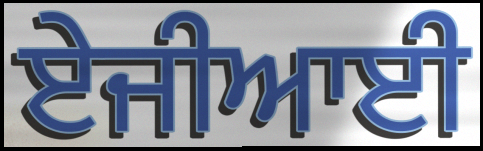
ਏਜੀਆਈ